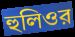
হুলিওর